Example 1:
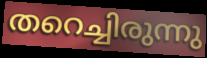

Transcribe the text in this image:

തറെച്ചിരുന്നു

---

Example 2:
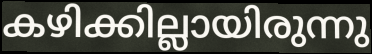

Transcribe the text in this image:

കഴിക്കില്ലായിരുന്നു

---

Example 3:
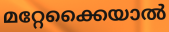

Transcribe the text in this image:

മറ്റേക്കൈയാൽ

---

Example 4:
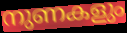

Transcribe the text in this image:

നുണകളും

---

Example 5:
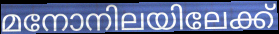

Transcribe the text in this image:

മനോനിലയിലേക്ക്